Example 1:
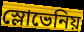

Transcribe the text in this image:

স্লোভেনিয়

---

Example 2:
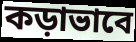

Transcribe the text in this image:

কড়াভাবে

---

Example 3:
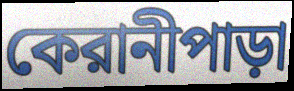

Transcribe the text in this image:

কেরানীপাড়া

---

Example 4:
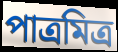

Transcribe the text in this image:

পাত্রমিত্র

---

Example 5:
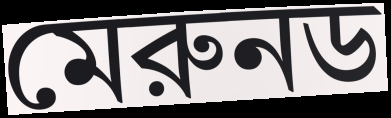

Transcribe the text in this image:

মেরুনড